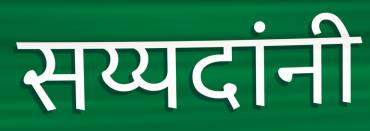
सय्यदांनी